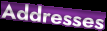
Addresses